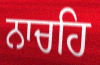
ਨਾਚਹਿ